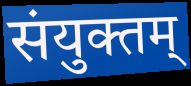
संयुक्तम्